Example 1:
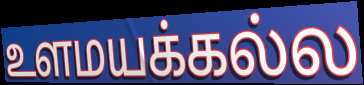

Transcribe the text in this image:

உளமயக்கல்ல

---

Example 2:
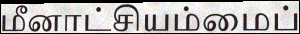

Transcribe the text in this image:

மீனாட்சியம்மைப்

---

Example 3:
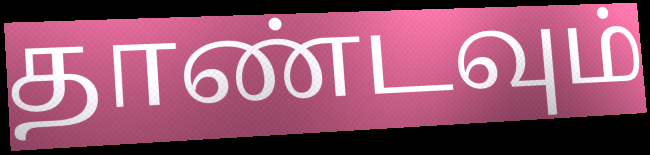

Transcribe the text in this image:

தாண்டவும்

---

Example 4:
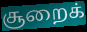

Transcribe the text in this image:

சூறைக்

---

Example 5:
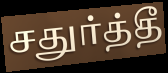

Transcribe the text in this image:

சதுர்த்தீ